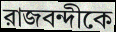
রাজবন্দীকে